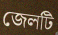
জেলটি